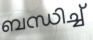
ബന്ധിച്ച്